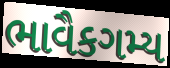
ભાવૈકગમ્ય